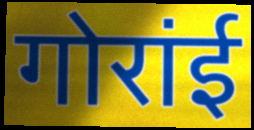
गोरांई